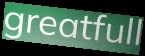
greatfull